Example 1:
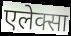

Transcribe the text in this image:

एलेक्सा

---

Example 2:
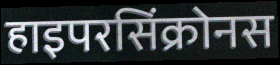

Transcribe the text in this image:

हाइपरसिंक्रोनस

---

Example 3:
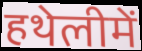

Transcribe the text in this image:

हथेलीमें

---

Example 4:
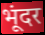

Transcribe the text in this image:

भूंदर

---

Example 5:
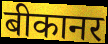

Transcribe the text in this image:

बीकानर